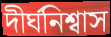
দীর্ঘনিশ্বাস